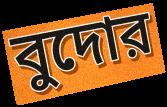
বুদোর